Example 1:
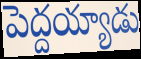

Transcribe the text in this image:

పెద్దయ్యాడు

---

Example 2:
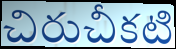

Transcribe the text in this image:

చిరుచీకటి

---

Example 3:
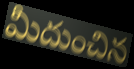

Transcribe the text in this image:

మీదుంచిన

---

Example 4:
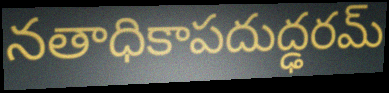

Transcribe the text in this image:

నతాధికాపదుద్ఢరమ్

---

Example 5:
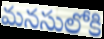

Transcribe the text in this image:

మనసులోకి